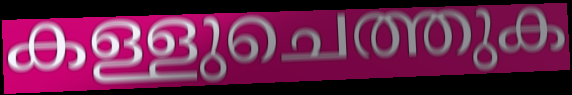
കള്ളുചെത്തുക